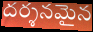
దర్శనమైన